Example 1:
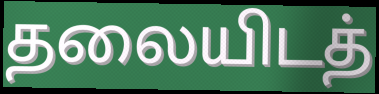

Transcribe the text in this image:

தலையிடத்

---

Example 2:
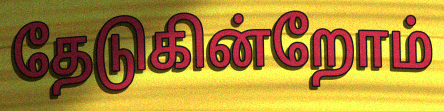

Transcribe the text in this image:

தேடுகின்றோம்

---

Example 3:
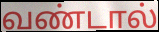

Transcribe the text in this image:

வண்டால்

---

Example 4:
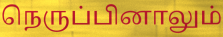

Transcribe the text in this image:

நெருப்பினாலும்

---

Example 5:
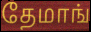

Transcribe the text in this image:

தேமாங்